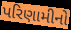
પરિણામીનો